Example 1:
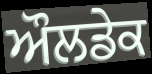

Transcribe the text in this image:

ਔਲਡੇਕ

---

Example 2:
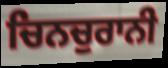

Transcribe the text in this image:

ਚਿਨਚੁਰਾਨੀ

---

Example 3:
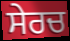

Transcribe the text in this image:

ਸੇਰਚ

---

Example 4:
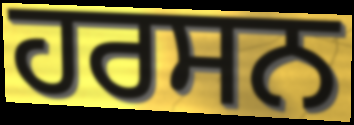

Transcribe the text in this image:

ਹਰਸਨ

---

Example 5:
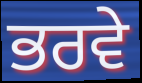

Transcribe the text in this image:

ਭਰਵੇ